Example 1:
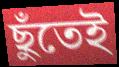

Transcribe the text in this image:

ছুঁতেই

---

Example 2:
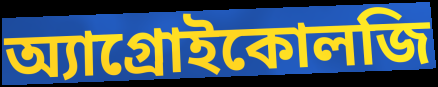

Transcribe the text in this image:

অ্যাগ্রোইকোলজি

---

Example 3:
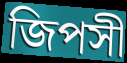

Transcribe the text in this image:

জিপসী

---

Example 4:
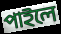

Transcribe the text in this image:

পাইলে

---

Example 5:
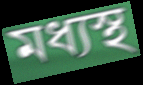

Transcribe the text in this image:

মধ্যস্থ